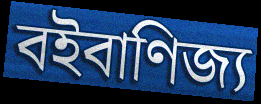
বইবাণিজ্য